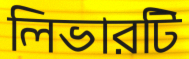
লিভারটি